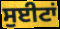
ਸੁਈਟਾਂ